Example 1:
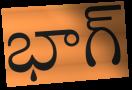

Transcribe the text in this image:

భాగ్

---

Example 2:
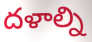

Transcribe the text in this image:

దళాల్ని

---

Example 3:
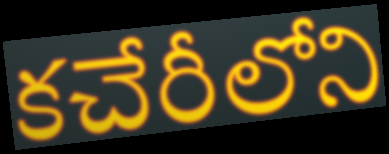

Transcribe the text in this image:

కచేరీలోని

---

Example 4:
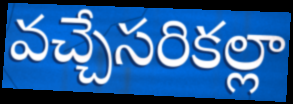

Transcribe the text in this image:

వచ్చేసరికల్లా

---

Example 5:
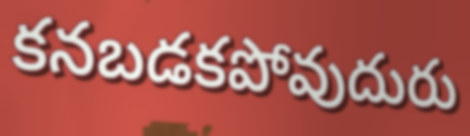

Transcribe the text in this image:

కనబడకపోవుదురు